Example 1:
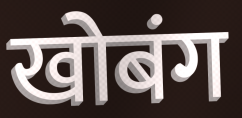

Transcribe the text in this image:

खोबंग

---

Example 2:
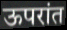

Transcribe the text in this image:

ऊपरांत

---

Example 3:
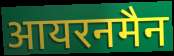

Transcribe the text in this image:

आयरनमैन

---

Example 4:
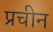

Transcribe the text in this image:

प्रचीन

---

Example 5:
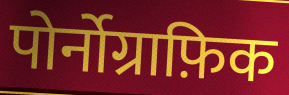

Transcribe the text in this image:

पोर्नोग्राफ़िक